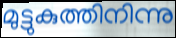
മുട്ടുകുത്തിനിന്നു